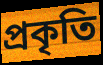
প্রকৃতি